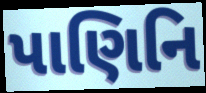
પાણિનિ